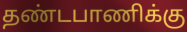
தண்டபாணிக்கு